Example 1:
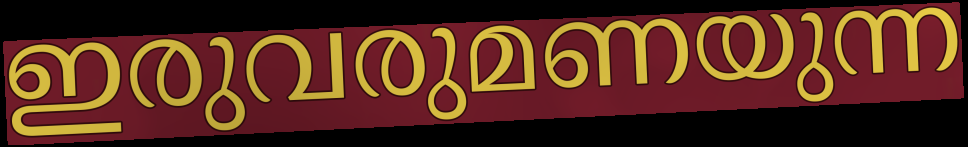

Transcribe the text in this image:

ഇരുവരുമണയുന്ന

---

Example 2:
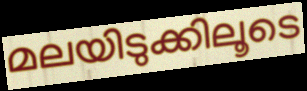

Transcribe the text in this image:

മലയിടുക്കിലൂടെ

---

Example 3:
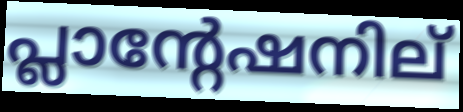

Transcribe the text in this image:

പ്ലാന്റേഷനില്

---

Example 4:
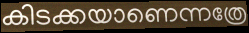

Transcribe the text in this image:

കിടക്കയാണെന്നത്രേ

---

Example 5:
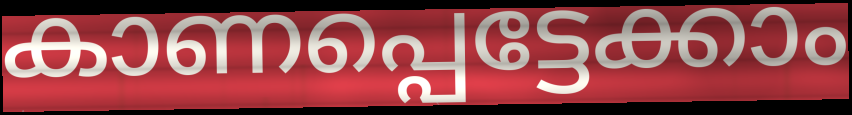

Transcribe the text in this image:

കാണപ്പെട്ടേക്കാം